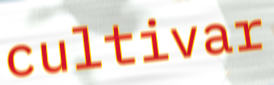
cultivar